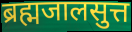
ब्रह्मजालसुत्त